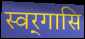
स्वर्गासि